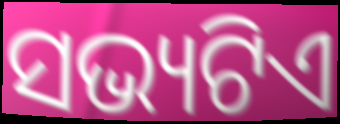
ସଭ୍ୟଟିଏ